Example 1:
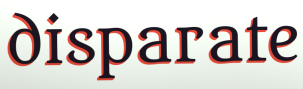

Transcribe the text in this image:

disparate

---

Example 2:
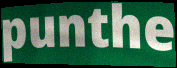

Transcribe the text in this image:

punthe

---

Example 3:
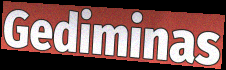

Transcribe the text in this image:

Gediminas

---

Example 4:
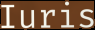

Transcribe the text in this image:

Iuris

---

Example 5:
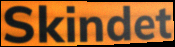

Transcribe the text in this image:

Skindet